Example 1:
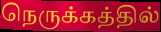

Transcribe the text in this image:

நெருக்கத்தில்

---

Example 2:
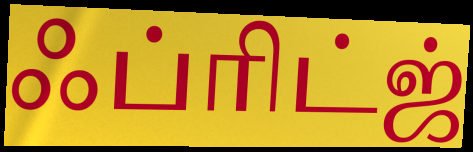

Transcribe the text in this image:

ஃப்ரிட்ஜ்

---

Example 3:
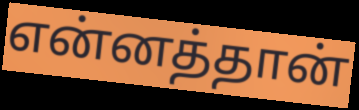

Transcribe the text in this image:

என்னத்தான்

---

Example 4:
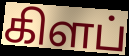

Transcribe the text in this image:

கிளப்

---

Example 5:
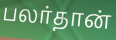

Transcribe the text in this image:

பலர்தான்